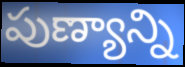
పుణ్యాన్ని